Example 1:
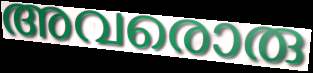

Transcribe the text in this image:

അവരൊരു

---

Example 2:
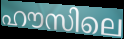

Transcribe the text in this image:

ഹൗസിലെ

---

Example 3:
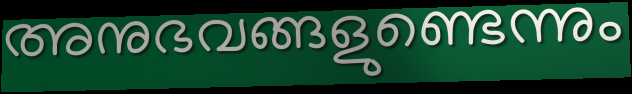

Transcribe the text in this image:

അനുഭവങ്ങളുണ്ടെന്നും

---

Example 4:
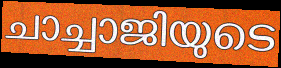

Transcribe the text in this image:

ചാച്ചാജിയുടെ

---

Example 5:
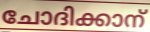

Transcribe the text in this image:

ചോദിക്കാന്